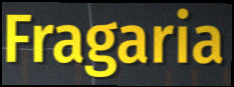
Fragaria